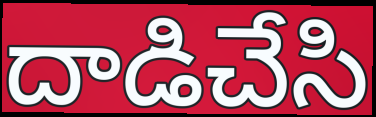
దాడిచేసి